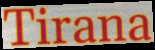
Tirana